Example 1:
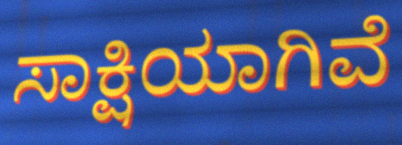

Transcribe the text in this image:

ಸಾಕ್ಷಿಯಾಗಿವೆ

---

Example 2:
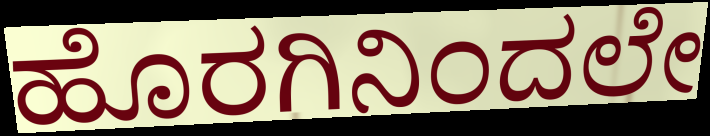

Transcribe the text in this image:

ಹೊರಗಿನಿಂದಲೇ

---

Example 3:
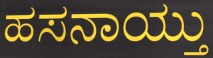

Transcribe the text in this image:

ಹಸನಾಯ್ತು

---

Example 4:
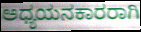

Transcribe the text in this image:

ಅಧ್ಯಯನಕಾರರಾಗಿ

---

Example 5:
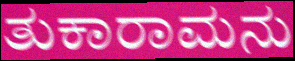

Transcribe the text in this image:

ತುಕಾರಾಮನು